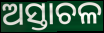
ଅସ୍ତାଚଳ